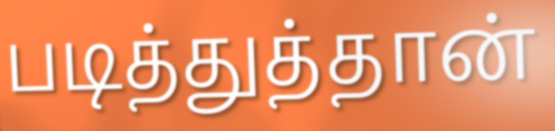
படித்துத்தான்